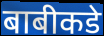
बाबीकडे